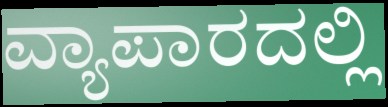
ವ್ಯಾಪಾರದಲ್ಲಿ